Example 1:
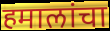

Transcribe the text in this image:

हमालांचा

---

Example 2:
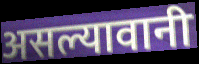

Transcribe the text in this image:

असल्यावानी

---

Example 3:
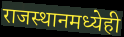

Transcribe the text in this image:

राजस्थानमध्येही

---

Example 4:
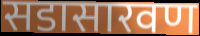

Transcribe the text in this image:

सडासारवण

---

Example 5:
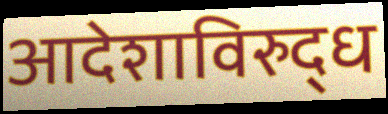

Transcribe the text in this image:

आदेशाविरुद्ध